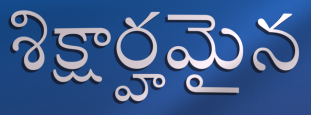
శిక్షార్హమైన